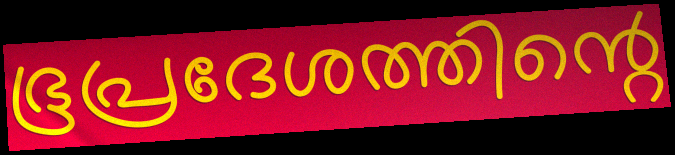
ഭൂപ്രദേശത്തിന്റെ